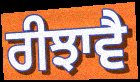
ਰੀਝਾਵੈ